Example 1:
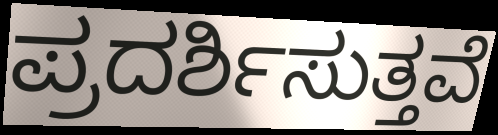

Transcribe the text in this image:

ಪ್ರದರ್ಶಿಸುತ್ತವೆ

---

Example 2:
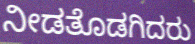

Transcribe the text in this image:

ನೀಡತೊಡಗಿದರು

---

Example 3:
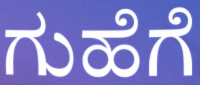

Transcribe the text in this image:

ಗುಹೆಗೆ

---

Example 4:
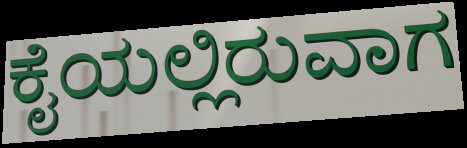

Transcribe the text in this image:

ಕೈಯಲ್ಲಿರುವಾಗ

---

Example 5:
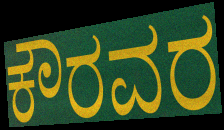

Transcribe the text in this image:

ಕೌರವರ